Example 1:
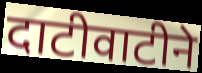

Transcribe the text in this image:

दाटीवाटीने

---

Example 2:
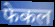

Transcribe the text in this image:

फेकल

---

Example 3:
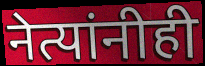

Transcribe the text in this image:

नेत्यांनीही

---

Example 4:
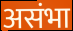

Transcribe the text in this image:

असंभा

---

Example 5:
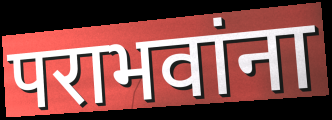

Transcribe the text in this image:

पराभवांना